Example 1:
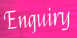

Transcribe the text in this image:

Enquiry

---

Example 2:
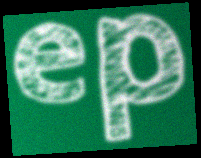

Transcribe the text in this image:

ep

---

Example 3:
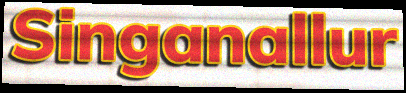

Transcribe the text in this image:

Singanallur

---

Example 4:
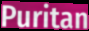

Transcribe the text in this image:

Puritan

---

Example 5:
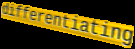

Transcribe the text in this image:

differentiating